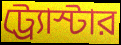
ট্র্যোস্টার